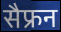
सैफ्रन